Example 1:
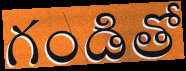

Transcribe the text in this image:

గండితో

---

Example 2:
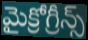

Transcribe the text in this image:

మైక్రోగ్రీన్స్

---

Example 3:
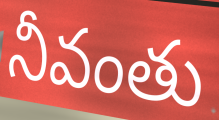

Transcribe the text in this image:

నీవంతు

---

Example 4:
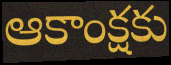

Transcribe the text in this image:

ఆకాంక్షకు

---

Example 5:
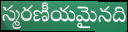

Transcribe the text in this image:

స్మరణీయమైనది